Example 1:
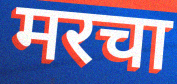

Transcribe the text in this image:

मरचा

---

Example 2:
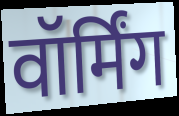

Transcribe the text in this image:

वॉर्मिंग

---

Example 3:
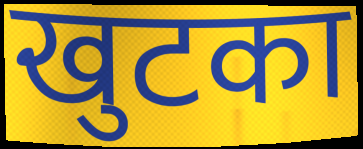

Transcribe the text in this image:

खुटका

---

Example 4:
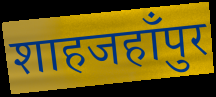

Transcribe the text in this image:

शाहजहाँपुर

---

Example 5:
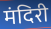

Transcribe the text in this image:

मंदिरी